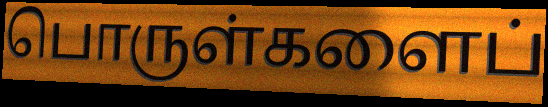
பொருள்களைப்